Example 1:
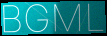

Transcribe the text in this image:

BGML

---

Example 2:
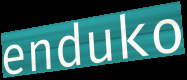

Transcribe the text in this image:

enduko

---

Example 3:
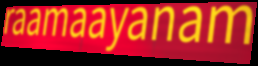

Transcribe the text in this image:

raamaayanam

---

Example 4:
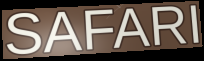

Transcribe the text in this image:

SAFARI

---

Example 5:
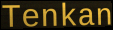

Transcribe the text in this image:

Tenkan